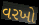
વરખો